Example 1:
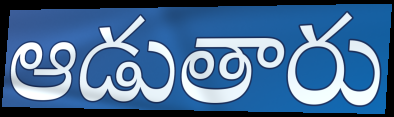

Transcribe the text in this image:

ఆడుతారు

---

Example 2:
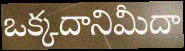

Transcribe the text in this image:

ఒక్కదానిమీదా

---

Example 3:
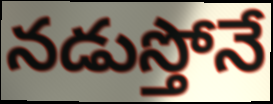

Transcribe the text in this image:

నడుస్తోనే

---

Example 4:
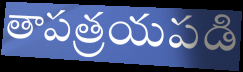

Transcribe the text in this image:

తాపత్రయపడి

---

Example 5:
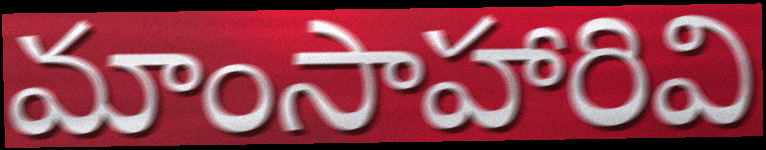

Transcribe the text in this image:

మాంసాహారివి